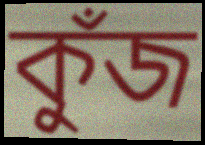
কুঁজ